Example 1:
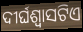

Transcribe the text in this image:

ଦୀର୍ଘଶ୍ୱାସଟିଏ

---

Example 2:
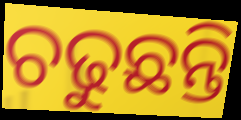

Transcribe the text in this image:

ଚଢୁଛନ୍ତି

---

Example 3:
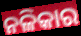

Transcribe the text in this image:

ନଳିକାର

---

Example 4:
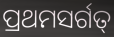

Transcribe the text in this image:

ପ୍ରଥମସର୍ଗତ୍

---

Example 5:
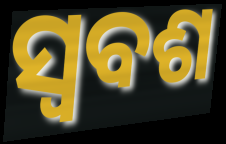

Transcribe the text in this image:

ସ୍ଵବଶ